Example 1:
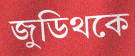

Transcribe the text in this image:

জুডিথকে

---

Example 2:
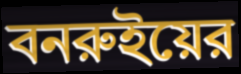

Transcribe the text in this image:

বনরুইয়ের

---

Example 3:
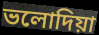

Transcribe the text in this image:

ভলোদিয়া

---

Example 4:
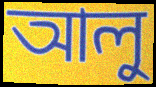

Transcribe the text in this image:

আলু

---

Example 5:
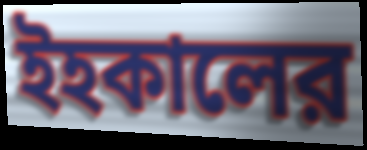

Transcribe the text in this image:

ইহকালের